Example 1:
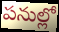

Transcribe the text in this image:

పనుల్లో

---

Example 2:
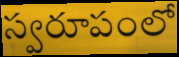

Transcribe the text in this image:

స్వరూపంలో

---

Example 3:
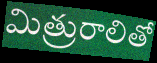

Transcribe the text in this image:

మిత్రురాలితో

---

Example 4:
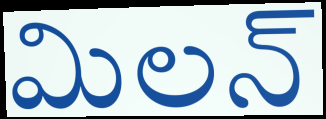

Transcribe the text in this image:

మిలన్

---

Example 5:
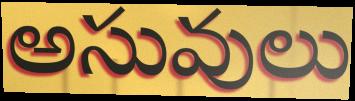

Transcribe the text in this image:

అసువులు